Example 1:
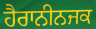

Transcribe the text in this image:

ਹੈਰਾਨੀਨਜਕ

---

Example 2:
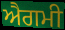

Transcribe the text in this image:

ਐਗਮੀ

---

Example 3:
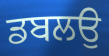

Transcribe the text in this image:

ਡਬਲਉ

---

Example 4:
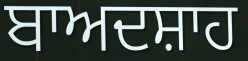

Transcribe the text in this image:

ਬਾਅਦਸ਼ਾਹ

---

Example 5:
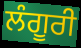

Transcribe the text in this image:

ਲੰਗੂਰੀ